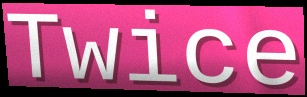
Twice